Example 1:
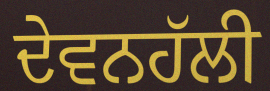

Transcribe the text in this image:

ਦੇਵਨਹੱਲੀ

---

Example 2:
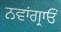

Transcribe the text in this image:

ਨਵਾਂਗ੍ਰਾਓਂ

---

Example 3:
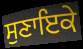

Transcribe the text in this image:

ਸੁਣਾਇਕੇ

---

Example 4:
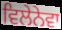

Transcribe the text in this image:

ਵਿਲੇਨੇਵਾ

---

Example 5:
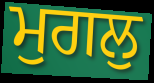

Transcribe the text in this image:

ਮੁਗਲੁ